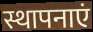
स्थापनाएं